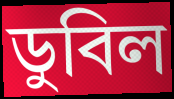
ডুবিল